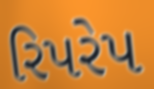
રિપરેપ